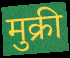
मुक्री